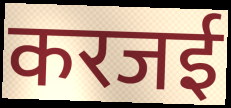
करजई